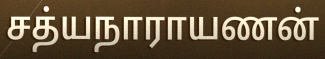
சத்யநாராயணன்